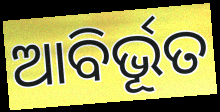
ଆବିର୍ଭୂତ